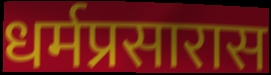
धर्मप्रसारास